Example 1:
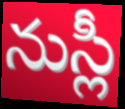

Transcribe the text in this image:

నుస్లీ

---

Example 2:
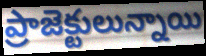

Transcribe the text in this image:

ప్రాజెక్టులున్నాయి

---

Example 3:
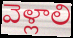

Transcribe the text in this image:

వెళ్లాలి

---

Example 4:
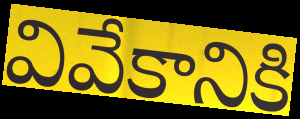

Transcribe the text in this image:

వివేకానికి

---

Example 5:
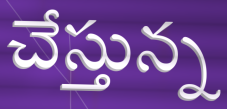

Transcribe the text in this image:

చేస్తున్న